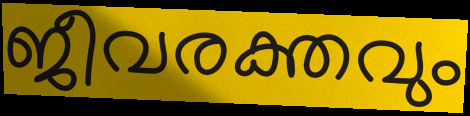
ജീവരക്തവും